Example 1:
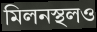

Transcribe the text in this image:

মিলনস্থলও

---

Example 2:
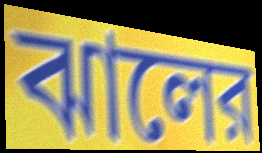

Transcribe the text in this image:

ঝালের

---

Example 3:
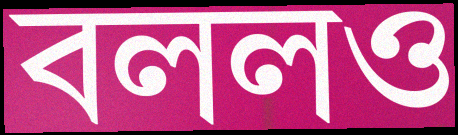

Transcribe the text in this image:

বললও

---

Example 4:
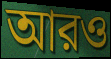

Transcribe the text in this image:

আরও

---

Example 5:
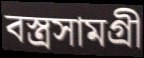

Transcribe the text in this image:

বস্ত্রসামগ্রী